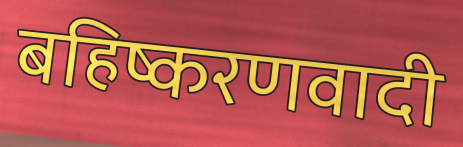
बहिष्करणवादी